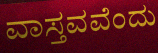
ವಾಸ್ತವವೆಂದು